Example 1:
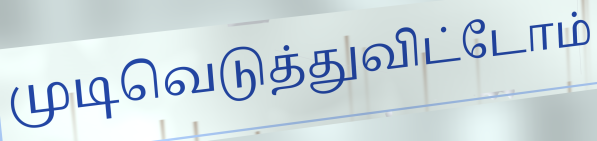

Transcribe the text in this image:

முடிவெடுத்துவிட்டோம்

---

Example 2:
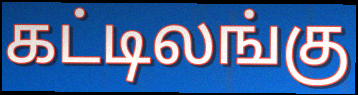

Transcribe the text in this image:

கட்டிலங்கு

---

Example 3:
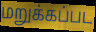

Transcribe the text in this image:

மறுக்கப்பட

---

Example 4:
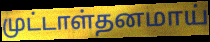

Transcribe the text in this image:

முட்டாள்தனமாய்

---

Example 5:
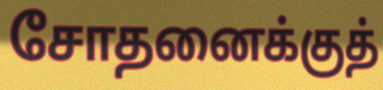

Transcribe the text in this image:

சோதனைக்குத்